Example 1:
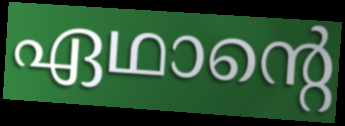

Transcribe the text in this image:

ഏഥാന്റെ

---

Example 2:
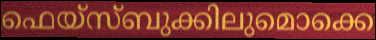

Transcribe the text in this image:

ഫെയ്സ്ബുക്കിലുമൊക്കെ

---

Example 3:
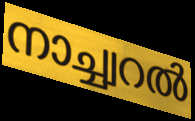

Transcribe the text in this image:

നാച്ച്വറൽ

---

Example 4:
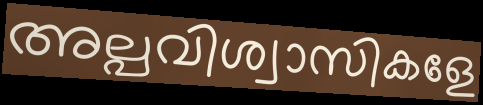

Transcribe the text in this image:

അല്പവിശ്വാസികളേ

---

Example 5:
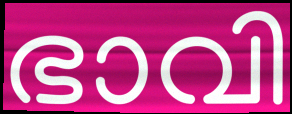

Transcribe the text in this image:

ഭാവി